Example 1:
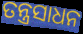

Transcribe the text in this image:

ତନ୍ତ୍ରସାଧନ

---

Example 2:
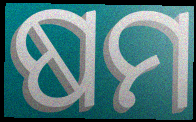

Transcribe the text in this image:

ଷମ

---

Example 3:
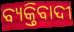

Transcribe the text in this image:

ବ୍ୟକ୍ତିବାଦୀ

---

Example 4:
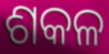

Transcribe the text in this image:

ଶକଳ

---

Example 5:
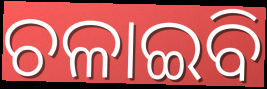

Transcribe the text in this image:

ଚଳାଇବି